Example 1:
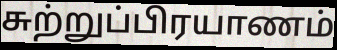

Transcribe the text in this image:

சுற்றுப்பிரயாணம்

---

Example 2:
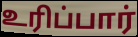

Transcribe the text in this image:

உரிப்பார்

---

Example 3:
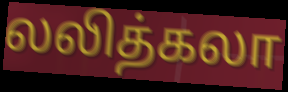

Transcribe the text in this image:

லலித்கலா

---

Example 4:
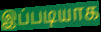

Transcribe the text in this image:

இப்படியாக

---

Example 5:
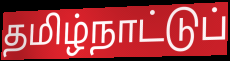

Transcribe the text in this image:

தமிழ்நாட்டுப்